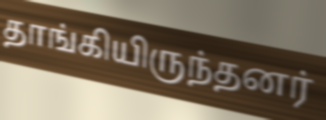
தாங்கியிருந்தனர்